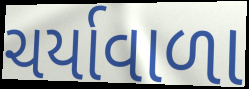
ચર્યાવાળા